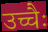
उच्चैः